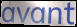
avant